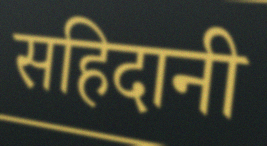
सहिदानी